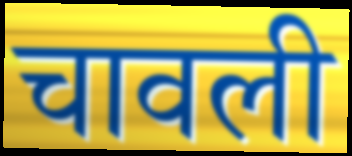
चावली